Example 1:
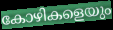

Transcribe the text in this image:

കോഴികളെയും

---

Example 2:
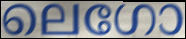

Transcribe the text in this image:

ലെഗോ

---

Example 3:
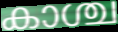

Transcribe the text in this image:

കാശ്ച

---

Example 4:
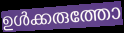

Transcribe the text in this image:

ഉൾക്കരുത്തോ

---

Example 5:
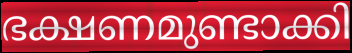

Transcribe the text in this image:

ഭക്ഷണമുണ്ടാക്കി